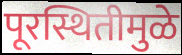
पूरस्थितीमुळे